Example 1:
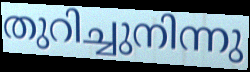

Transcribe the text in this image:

തുറിച്ചുനിന്നു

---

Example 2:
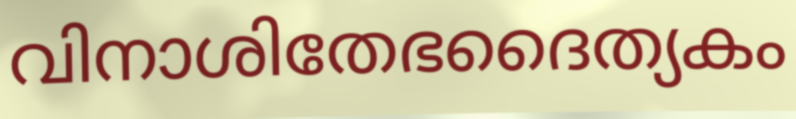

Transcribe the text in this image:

വിനാശിതേഭദൈത്യകം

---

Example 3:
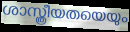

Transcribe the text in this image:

ശാസ്ത്രീയതയെയും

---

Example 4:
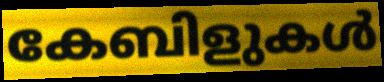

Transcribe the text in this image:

കേബിളുകൾ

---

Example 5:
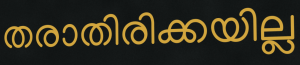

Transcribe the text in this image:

തരാതിരിക്കയില്ല